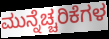
ಮುನ್ನೆಚ್ಚರಿಕೆಗಳ